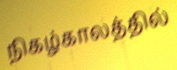
நிகழ்காலத்தில்